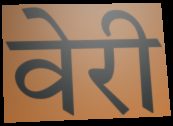
वेरी